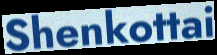
Shenkottai